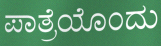
ಪಾತ್ರೆಯೊಂದು